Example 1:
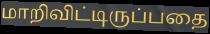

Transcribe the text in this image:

மாறிவிட்டிருப்பதை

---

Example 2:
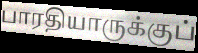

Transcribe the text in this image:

பாரதியாருக்குப்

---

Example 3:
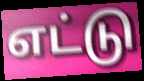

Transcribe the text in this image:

எட்டு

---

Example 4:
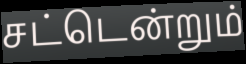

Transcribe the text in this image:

சட்டென்றும்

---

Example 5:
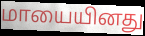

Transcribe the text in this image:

மாயையினது